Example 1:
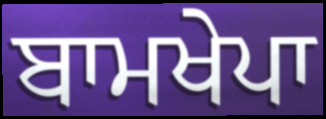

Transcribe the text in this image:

ਬਾਮਖੇਪਾ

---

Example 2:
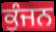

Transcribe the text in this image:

ਕੁੰਜਨ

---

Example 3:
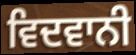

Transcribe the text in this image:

ਵਿਦਵਾਨੀ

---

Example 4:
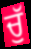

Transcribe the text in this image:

ਚੁੱ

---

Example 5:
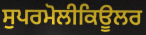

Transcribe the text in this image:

ਸੁਪਰਮੋਲੀਕਿਊਲਰ